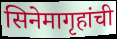
सिनेमागृहांची